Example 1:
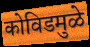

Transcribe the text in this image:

कोविडमुळे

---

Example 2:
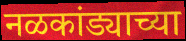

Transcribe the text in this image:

नळकांड्याच्या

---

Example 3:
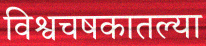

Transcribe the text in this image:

विश्वचषकातल्या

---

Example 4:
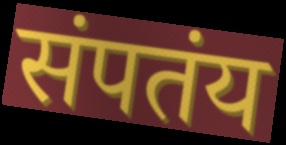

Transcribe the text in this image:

संपतंय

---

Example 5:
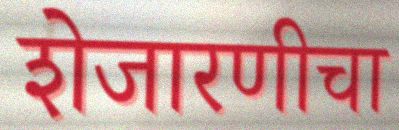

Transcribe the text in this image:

शेजारणीचा